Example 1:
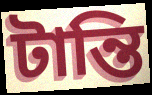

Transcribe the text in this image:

টান্তি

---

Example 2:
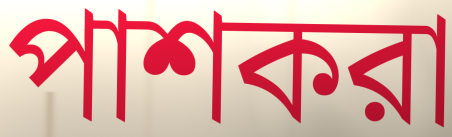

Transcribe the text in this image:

পাশকরা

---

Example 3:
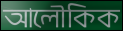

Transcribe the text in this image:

আলৌকিক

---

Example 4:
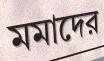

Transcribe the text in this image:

মমাদের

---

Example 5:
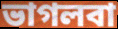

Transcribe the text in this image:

ভাগলবা